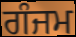
ਗੰਜਮ